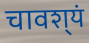
चावश्यं